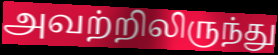
அவற்றிலிருந்து